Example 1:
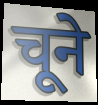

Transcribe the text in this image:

चूने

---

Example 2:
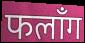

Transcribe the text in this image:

फलाँग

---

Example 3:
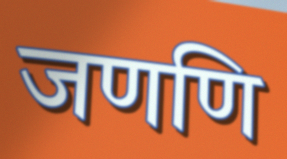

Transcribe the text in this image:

जणणि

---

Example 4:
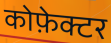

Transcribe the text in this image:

कोफ़ेक्टर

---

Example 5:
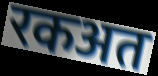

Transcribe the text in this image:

रकअत